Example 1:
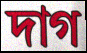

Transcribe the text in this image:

দাগ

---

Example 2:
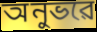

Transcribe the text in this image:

অনুভৱে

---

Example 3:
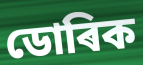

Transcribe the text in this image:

ডোৰিক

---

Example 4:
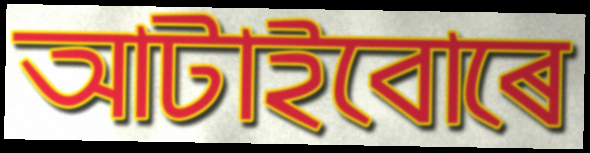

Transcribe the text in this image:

আটাইবোৰে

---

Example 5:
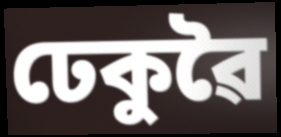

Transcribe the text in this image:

ঢেকুৱৈ